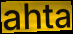
ahta